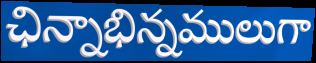
ఛిన్నాభిన్నములుగా